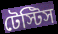
টেস্টিস